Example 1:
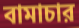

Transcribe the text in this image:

বামাচার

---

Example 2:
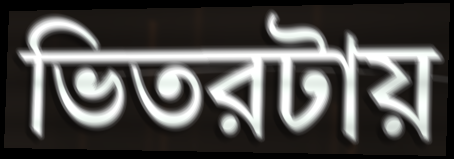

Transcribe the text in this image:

ভিতরটায়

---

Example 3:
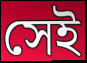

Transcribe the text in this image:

সেই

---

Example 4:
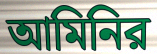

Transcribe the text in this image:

আমিনির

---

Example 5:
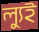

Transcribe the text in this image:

ল্যুই